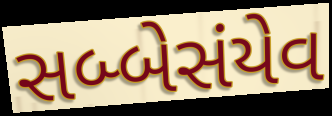
સબ્બેસંયેવ